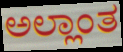
ಅಲ್ಲಾಂತ